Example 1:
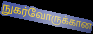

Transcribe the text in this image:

நுகர்வோருக்கான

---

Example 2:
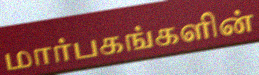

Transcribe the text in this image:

மார்பகங்களின்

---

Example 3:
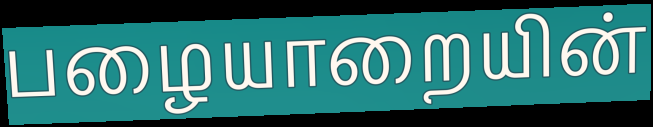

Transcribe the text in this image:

பழையாறையின்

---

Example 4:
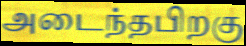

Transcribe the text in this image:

அடைந்தபிறகு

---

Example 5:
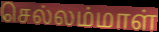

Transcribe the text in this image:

செல்லம்மாள்